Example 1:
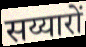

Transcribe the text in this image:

सय्यारों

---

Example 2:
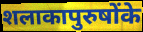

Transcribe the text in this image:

शलाकापुरुषोंके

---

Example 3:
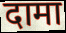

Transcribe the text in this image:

दामा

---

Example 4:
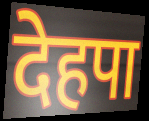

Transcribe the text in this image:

देहपा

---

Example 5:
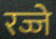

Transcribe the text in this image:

रज्जे